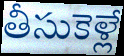
తీసుకెళ్లే